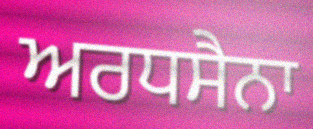
ਅਰਧਸੈਨਾ